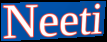
Neeti